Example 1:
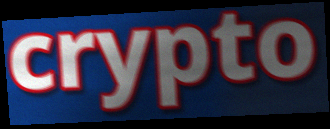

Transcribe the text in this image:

crypto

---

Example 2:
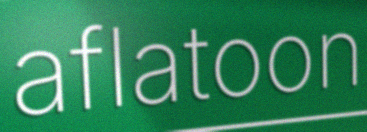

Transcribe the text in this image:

aflatoon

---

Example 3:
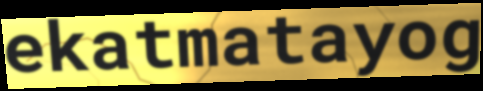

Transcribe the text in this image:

ekatmatayog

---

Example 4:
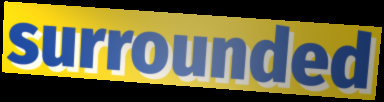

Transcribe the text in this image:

surrounded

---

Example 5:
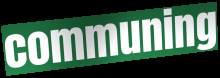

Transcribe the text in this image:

communing